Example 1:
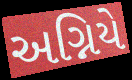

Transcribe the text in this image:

અગ્નિયે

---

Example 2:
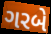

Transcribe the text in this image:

ગરબે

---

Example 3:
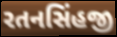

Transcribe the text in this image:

રતનસિંહજી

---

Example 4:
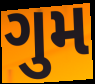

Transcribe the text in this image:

ગુમ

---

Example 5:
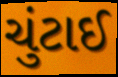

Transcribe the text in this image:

ચુંટાઈ